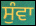
ਸੁੰਵਾ